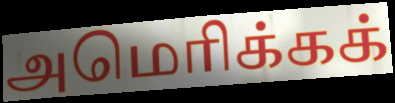
அமெரிக்கக்